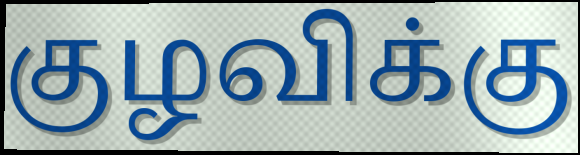
குழவிக்கு